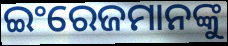
ଇଂରେଜମାନଙ୍କୁ